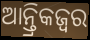
ଆନ୍ତ୍ରିକଜ୍ଵର